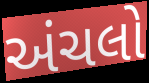
અંચલો